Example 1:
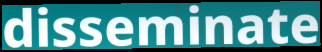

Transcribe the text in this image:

disseminate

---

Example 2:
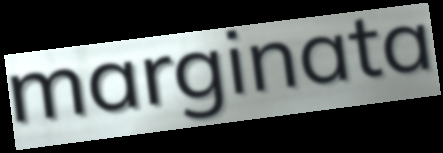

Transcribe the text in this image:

marginata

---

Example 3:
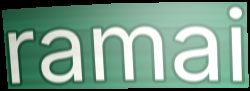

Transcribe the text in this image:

ramai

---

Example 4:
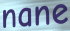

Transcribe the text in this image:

nane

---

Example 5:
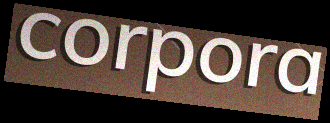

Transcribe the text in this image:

corpora